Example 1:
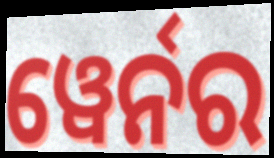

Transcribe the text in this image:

ୱେର୍ନର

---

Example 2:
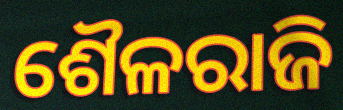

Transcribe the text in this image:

ଶୈଳରାଜି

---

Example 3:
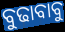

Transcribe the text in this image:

ବୁଢାବାବୁ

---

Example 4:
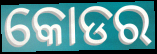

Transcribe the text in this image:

କୋଡର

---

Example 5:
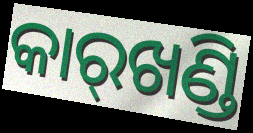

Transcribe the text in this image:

କାର୍‌ଖଣ୍ଡି